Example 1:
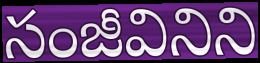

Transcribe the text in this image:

సంజీవినిని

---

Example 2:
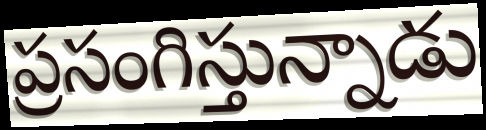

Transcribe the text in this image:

ప్రసంగిస్తున్నాడు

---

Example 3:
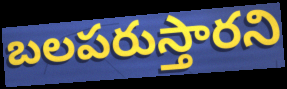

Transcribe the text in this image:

బలపరుస్తారని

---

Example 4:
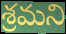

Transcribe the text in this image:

శ్రమని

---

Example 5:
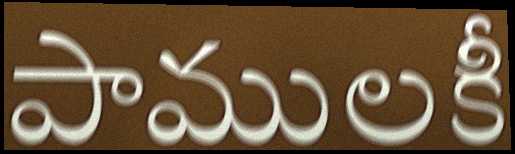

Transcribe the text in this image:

పాములకీ